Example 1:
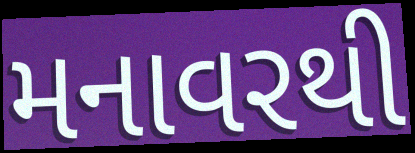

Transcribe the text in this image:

મનાવરથી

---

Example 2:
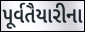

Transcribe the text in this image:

પૂર્વતૈયારીના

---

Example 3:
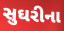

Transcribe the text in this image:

સુઘરીના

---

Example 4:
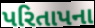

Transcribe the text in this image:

પરિતાપના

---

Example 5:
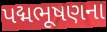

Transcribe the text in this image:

પદ્મભૂષણના